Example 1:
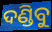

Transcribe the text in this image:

ଦଣ୍ଡିବୁ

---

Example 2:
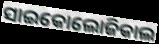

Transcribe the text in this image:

ସାଇକୋଲୋଜିକାଲ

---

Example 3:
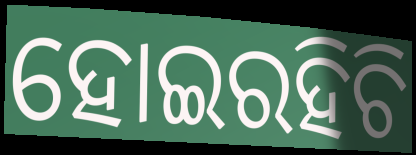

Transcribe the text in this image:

ହୋଇରହିଚି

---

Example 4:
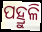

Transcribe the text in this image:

ପହ୍ରୁଳି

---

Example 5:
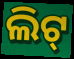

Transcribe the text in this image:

ଲିଟ୍